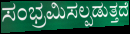
ಸಂಭ್ರಮಿಸಲ್ಪಡುತ್ತದೆ